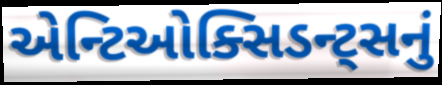
એન્ટિઓક્સિડન્ટ્સનું